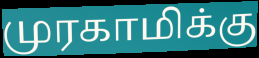
முரகாமிக்கு